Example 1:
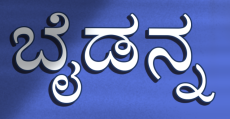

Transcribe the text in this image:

ಬೈಡನ್ನ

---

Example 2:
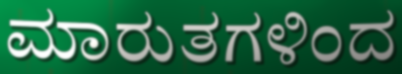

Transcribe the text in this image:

ಮಾರುತಗಳಿಂದ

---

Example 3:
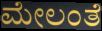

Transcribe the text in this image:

ಮೇಲಂತೆ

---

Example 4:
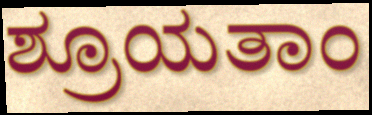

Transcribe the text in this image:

ಶ್ರೂಯತಾಂ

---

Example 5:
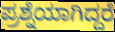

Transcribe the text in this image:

ಪ್ರಶ್ನೆಯಾಗಿದ್ದರೆ